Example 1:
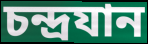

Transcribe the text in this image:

চন্দ্রযান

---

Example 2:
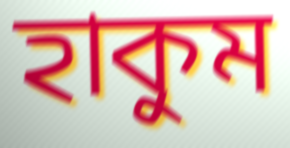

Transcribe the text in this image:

হাকুম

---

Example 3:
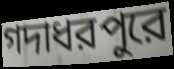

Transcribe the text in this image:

গদাধরপুরে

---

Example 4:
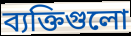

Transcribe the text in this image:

ব্যক্তিগুলো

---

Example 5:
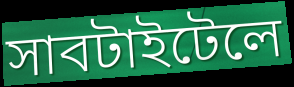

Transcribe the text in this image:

সাবটাইটেলে